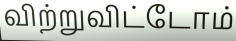
விற்றுவிட்டோம்